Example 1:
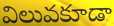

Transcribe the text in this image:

విలువకూడా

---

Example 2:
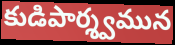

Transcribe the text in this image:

కుడిపార్శ్వమున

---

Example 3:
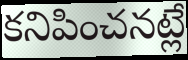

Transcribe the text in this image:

కనిపించనట్లే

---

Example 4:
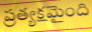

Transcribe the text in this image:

ప్రత్యక్షమైంది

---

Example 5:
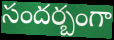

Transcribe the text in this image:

సందర్బంగా